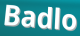
Badlo